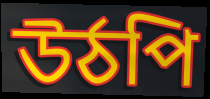
উঠপি